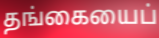
தங்கையைப்